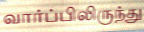
வார்ப்பிலிருந்து